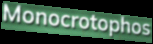
Monocrotophos